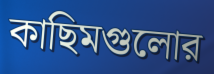
কাছিমগুলোর